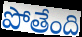
పోతేంది